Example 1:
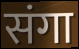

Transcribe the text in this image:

संगा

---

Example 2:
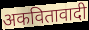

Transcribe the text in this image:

अकवितावादी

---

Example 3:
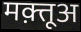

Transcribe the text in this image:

मक़्तूअ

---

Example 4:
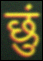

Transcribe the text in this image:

छुं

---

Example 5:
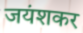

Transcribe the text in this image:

जयंशकर